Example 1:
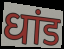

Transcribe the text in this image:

धांड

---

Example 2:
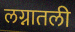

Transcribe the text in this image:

लग्नातली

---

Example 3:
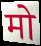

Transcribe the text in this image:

मो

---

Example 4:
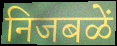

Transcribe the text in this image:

निजबळें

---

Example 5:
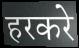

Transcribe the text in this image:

हरकरे